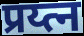
प्रय्त्न